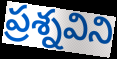
ప్రశ్నవిని